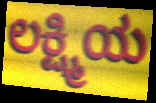
ಲಕ್ಷ್ಮಿಯ